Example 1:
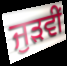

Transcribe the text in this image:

ਜੁੜਵੀਂ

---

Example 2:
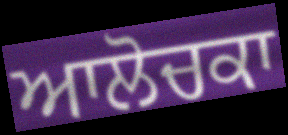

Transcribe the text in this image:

ਆਲੋਚਕਾ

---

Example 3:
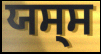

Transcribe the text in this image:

ਯਸ੍ਸ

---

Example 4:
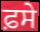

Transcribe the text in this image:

ਫ਼ਸੇ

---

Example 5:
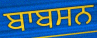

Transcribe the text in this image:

ਬਾਬਸਨ